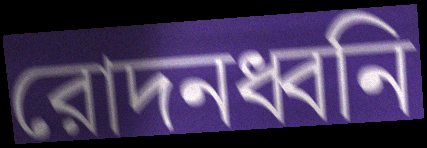
রোদনধ্বনি